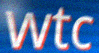
wtc